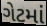
ગેટમાં